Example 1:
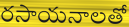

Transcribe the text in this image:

రసాయనాలతో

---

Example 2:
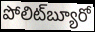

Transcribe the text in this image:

పోలిట్‌బ్యూరో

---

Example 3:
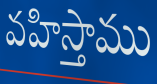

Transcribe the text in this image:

వహిస్తాము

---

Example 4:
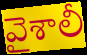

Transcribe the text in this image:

వైశాలీ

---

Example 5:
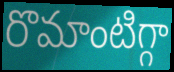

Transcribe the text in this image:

రొమాంటిగ్గా